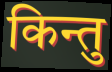
किन्‍तु